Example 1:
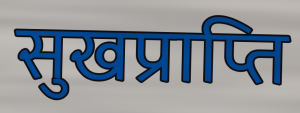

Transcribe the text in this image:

सुखप्राप्ति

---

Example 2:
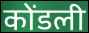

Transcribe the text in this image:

कोंडली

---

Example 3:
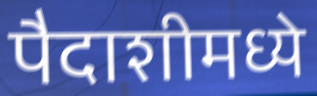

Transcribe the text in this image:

पैदाशीमध्ये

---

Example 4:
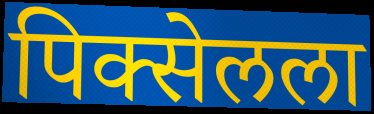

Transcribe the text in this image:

पिक्सेलला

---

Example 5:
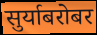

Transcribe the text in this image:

सुर्याबरोबर